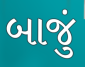
બાજું